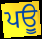
ਪਉੂ